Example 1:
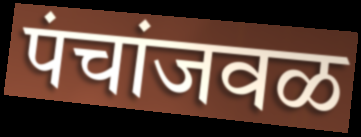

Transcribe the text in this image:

पंचांजवळ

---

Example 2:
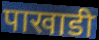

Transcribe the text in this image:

पाखाडी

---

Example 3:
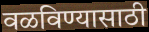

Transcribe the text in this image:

वळविण्यासाठी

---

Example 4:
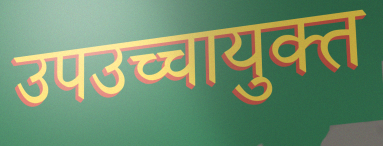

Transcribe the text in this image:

उपउच्चायुक्त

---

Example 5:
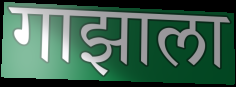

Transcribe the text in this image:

गाझाला